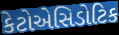
કેટોએસિડોટિક